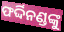
ଫର୍ଦ୍ଦିନଣ୍ଡଙ୍କୁ